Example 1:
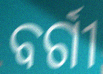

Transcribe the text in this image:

ବର୍ଗୀ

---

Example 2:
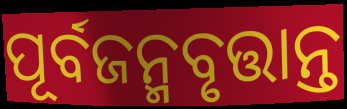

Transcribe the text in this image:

ପୂର୍ବଜନ୍ମବୃତ୍ତାନ୍ତ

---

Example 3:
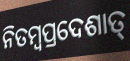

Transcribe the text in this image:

ନିତମ୍ବପ୍ରଦେଶାତ୍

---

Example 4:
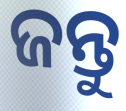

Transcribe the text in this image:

ଜନ୍ତୁ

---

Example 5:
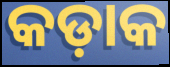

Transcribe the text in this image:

କଡ଼ାକ